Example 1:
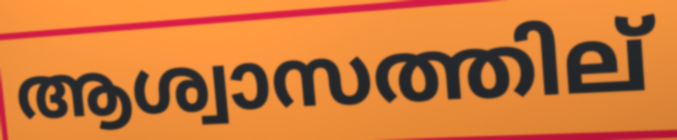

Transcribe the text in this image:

ആശ്വാസത്തില്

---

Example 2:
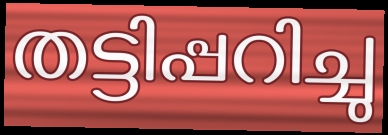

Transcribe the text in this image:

തട്ടിപ്പറിച്ചു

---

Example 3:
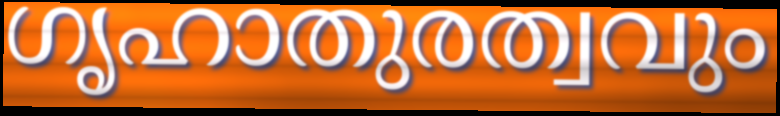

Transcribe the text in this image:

ഗൃഹാതുരത്വവും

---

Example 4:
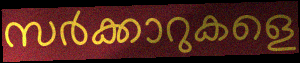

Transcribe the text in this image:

സർക്കാറുകളെ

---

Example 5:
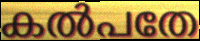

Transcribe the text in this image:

കൽപതേ